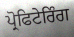
ਪ੍ਰੋਫਿਟੇਰਿੰਗ